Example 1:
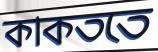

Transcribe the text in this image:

কাকততে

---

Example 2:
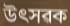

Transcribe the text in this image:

উৎসৱক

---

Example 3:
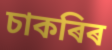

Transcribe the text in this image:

চাকৰিৰ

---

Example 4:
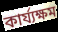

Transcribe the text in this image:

কাৰ্য্যক্ষম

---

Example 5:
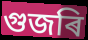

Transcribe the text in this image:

গুজৰি